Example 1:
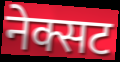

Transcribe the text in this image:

नेक्सट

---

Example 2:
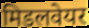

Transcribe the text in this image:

मिडलवेयर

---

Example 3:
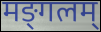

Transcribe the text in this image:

मङ्गलम्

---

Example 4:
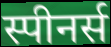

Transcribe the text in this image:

स्पीनर्स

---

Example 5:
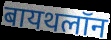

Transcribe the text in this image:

बायथलॉन